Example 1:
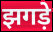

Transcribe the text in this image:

झगड़े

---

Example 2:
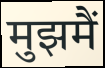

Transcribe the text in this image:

मुझमैं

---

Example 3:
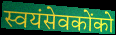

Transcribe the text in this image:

स्वयंसेवकोंको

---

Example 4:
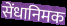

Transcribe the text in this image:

सेंधानिमक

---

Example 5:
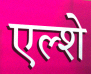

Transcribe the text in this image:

एल्शे